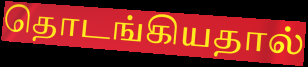
தொடங்கியதால்